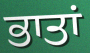
ਭਾਤਾਂ